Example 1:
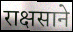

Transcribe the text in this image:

राक्षसाने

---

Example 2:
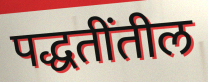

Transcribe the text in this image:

पद्धतींतील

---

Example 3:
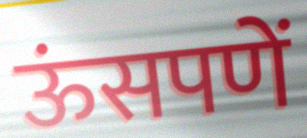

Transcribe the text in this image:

ऊंसपणें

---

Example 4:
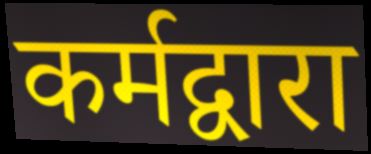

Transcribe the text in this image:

कर्मद्वारा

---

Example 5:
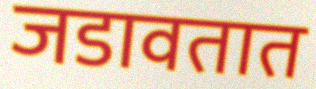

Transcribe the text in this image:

जडावतात